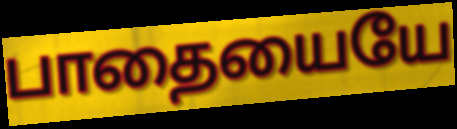
பாதையையே